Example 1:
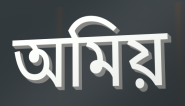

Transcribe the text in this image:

অমিয়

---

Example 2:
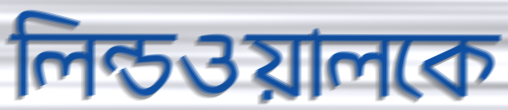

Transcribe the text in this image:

লিন্ডওয়ালকে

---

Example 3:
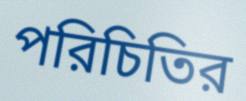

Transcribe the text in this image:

পরিচিতির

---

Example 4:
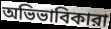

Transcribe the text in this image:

অভিভাবিকারা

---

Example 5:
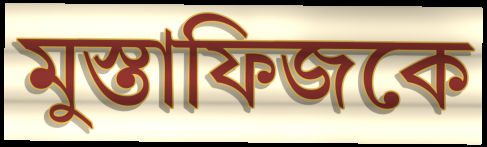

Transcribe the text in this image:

মুস্তাফিজকে